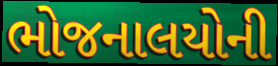
ભોજનાલયોની